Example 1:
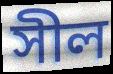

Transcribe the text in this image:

সীল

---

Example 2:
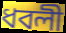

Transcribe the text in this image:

ধবলী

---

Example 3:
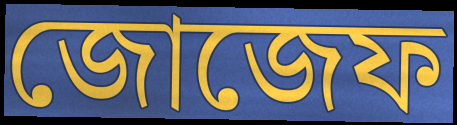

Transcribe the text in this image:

জোজেফ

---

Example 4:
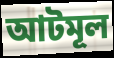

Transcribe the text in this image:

আটমূল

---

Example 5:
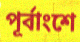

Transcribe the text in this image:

পূর্বাংশে